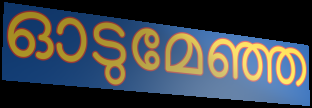
ഓടുമേഞ്ഞ